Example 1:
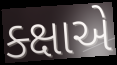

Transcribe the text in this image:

ક્ક્ષાએ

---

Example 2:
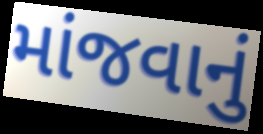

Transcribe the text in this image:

માંજવાનું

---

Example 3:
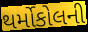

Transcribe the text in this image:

થર્મોકોલની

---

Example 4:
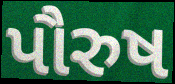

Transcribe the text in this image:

પૌરુષ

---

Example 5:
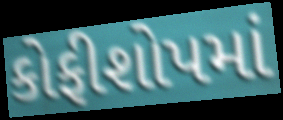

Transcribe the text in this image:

કોફીશોપમાં